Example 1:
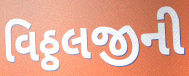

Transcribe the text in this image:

વિઠ્ઠલજીની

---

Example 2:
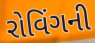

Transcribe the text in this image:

રોવિંગની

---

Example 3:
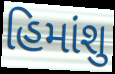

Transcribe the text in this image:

હિમાંશુ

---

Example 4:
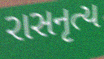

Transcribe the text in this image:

રાસનૃત્ય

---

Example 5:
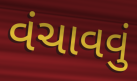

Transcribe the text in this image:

વંચાવવું